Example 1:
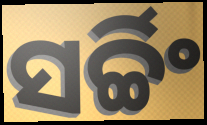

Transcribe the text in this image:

ସର୍ଚ୍ଚିଂ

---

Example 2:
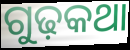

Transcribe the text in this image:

ଗୁଢ଼କଥା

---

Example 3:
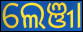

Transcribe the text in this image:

ଲେଞ୍ଜା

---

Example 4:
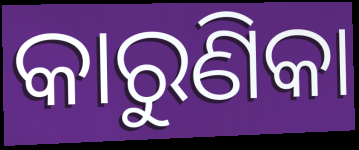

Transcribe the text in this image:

କାରୁଣିକା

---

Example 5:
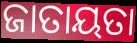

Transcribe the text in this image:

ଜାତାୟତା